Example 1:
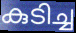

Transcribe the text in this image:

കുടിച്ച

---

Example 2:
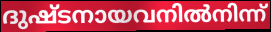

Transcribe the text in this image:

ദുഷ്ടനായവനിൽനിന്ന്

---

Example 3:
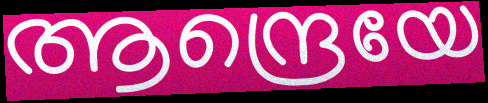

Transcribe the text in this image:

ആന്ദ്രെയേ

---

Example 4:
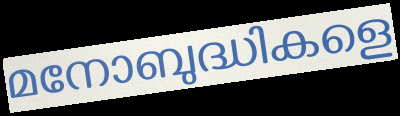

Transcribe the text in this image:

മനോബുദ്ധികളെ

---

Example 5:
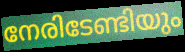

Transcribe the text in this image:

നേരിടേണ്ടിയും